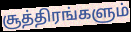
சூத்திரங்களும்